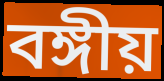
বঙ্গীয়